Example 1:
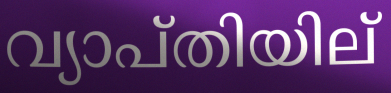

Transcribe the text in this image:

വ്യാപ്തിയില്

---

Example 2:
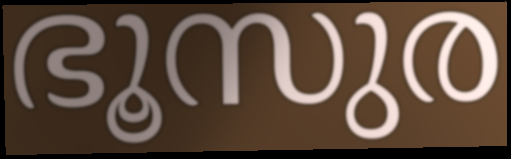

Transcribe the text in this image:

ഭൂസുര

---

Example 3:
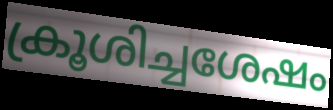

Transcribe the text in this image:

ക്രൂശിച്ചശേഷം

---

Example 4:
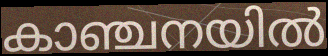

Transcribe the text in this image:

കാഞ്ചനയിൽ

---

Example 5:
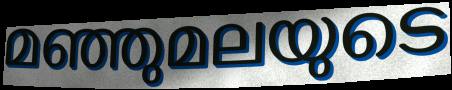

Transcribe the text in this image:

മഞ്ഞുമലയുടെ